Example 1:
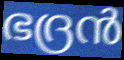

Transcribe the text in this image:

ഭദ്രൻ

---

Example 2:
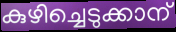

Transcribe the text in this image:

കുഴിച്ചെടുക്കാന്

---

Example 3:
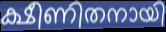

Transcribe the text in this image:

ക്ഷീണിതനായി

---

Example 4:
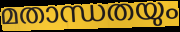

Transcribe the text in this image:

മതാന്ധതയും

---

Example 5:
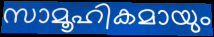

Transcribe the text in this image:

സാമൂഹികമായും